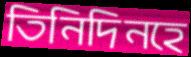
তিনিদিনহে